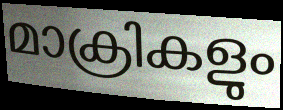
മാക്രികളും